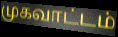
முகவாட்டம்